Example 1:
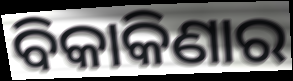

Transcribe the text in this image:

ବିକାକିଣାର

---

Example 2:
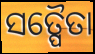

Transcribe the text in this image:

ସତ୍ପୈତା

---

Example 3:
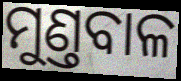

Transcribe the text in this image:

ମୁଣ୍ତବାଳ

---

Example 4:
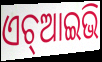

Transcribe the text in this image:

ଏଚ୍ଆଇଭି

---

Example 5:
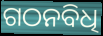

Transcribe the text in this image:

ଗଠନବିଧି